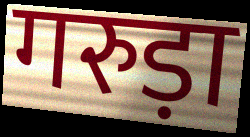
गरुड़ा